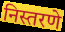
निस्तरणे